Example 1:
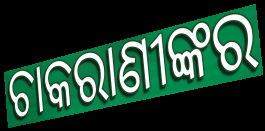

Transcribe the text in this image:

ଚାକରାଣୀଙ୍କର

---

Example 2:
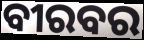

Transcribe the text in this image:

ବୀରବର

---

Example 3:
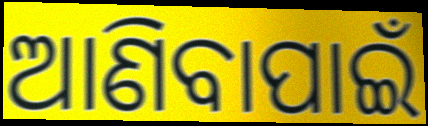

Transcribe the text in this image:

ଆଣିବାପାଇଁ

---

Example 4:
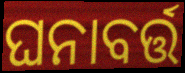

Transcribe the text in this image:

ଘନାବର୍ତ୍ତ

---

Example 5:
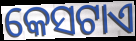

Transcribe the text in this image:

କେସଟାଏ